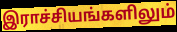
இராச்சியங்களிலும்